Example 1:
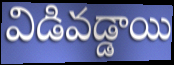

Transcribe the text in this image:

విడివడ్డాయి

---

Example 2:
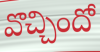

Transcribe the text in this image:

వొచ్చిందో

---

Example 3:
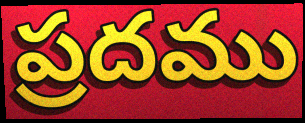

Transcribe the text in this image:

ప్రదము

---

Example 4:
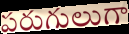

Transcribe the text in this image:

పరుగులుగా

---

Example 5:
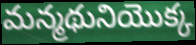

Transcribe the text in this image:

మన్మథునియొక్క